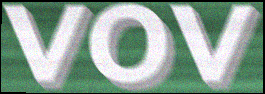
vov